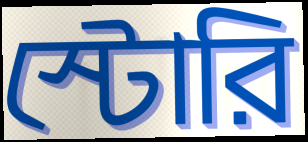
স্টোরি